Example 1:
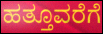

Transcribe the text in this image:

ಹತ್ತೂವರೆಗೆ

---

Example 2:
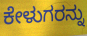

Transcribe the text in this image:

ಕೇಳುಗರನ್ನು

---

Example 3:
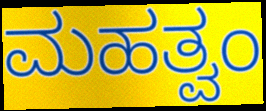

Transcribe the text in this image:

ಮಹತ್ವಂ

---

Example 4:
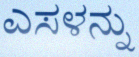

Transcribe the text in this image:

ಎಸಳನ್ನು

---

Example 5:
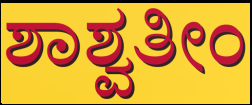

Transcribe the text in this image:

ಶಾಶ್ವತೀಂ